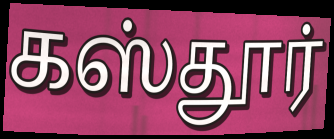
கஸ்தூர்